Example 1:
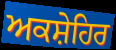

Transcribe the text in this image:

ਅਕਸ਼ੇਹਿਰ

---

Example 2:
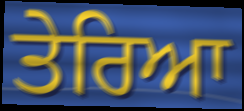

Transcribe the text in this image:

ਤੇਰਿਆ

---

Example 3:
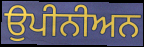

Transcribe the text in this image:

ਉਪੀਨੀਅਨ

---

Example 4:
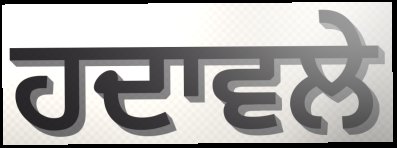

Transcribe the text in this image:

ਹਦਾਵਲੇ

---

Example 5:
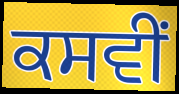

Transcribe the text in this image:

ਕਸਵੀਂ